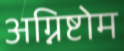
अग्निष्टोम